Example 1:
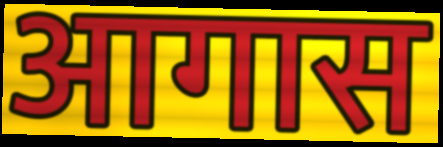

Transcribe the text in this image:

आगास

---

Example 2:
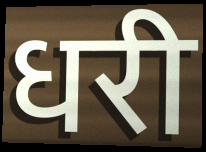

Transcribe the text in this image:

धरी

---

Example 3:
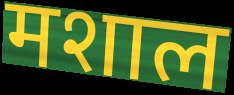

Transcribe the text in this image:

मशाल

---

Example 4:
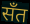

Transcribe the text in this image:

सँत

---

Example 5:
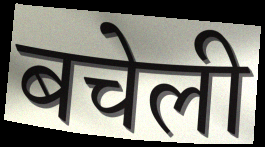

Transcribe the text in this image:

बचेली